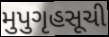
મુપુગૃહસૂચી